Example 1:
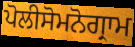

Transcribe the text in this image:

ਪੋਲੀਸੋਮਨੋਗ੍ਰਾਮ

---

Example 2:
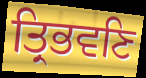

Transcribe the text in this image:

ਤ੍ਰਿਭਵਣਿ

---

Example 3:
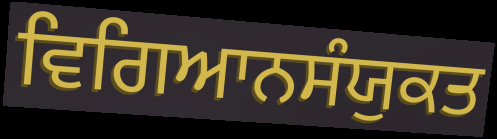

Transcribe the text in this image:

ਵਿਗਿਆਨਸੰਯੁਕਤ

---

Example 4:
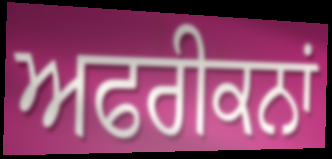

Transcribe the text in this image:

ਅਫਰੀਕਨਾਂ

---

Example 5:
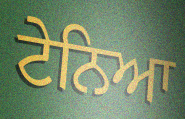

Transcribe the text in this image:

ਟੇਨਿਆ